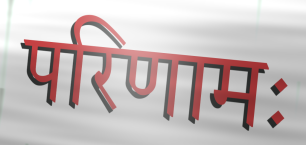
परिणामः